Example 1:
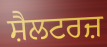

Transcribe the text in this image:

ਸ਼ੈਲਟਰਜ਼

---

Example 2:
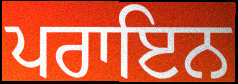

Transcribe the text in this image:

ਪਰਾਇਨ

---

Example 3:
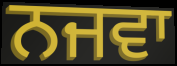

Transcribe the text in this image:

ਨਜਵਾ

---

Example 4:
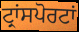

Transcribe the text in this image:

ਟ੍ਰਾਂਸਪੋਰਟਾਂ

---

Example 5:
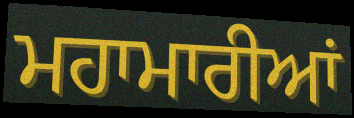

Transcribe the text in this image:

ਮਹਾਮਾਰੀਆਂ